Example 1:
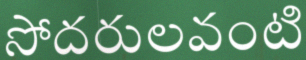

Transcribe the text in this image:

సోదరులవంటి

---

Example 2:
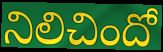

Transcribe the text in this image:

నిలిచిందో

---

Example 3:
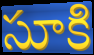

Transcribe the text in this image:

సూకి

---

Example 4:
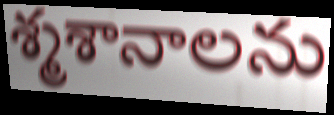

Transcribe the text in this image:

శ్మశానాలను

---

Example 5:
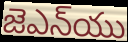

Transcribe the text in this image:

జెఎన్‌యు